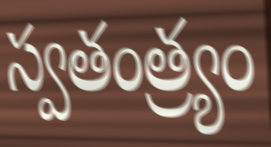
స్వతంత్ర్యం